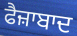
ਫੈਜ਼ਾਬਾਦ